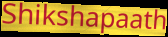
Shikshapaath